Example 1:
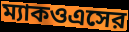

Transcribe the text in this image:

ম্যাকওএসের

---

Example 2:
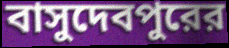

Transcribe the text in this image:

বাসুদেবপুরের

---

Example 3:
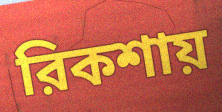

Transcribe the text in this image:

রিকশায়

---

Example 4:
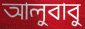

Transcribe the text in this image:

আলুবাবু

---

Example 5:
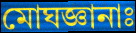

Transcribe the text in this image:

মোঘজ্ঞানাঃ